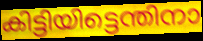
കിട്ടിയിട്ടെന്തിനാ